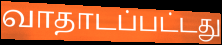
வாதாடப்பட்டது